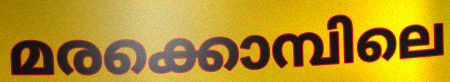
മരക്കൊമ്പിലെ